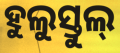
ହୁଲୁସ୍ତୁଲ୍